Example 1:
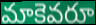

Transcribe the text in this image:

మాకెవరూ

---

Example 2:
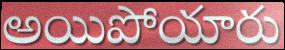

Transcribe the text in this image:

అయిపోయారు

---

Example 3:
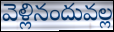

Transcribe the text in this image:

వెళ్లినందువల్ల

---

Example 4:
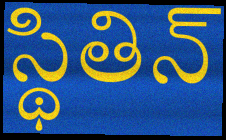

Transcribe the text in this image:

స్థితిన్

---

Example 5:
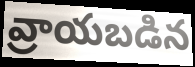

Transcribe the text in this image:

వ్రాయబడిన